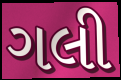
ગલી